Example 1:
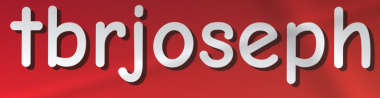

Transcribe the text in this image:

tbrjoseph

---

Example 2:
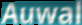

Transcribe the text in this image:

Auwal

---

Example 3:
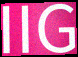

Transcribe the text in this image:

IIG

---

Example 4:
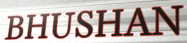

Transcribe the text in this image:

BHUSHAN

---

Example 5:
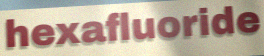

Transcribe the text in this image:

hexafluoride